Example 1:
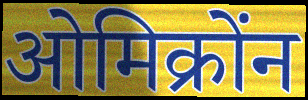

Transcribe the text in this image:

ओमिक्रोंन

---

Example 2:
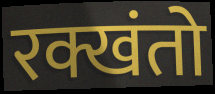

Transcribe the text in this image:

रक्खंतो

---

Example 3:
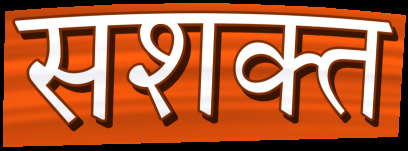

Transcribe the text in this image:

सशक्‍त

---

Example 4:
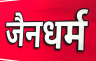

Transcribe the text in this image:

जैनधर्म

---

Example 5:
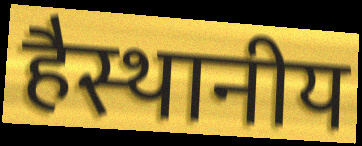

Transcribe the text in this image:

हैस्थानीय